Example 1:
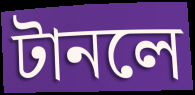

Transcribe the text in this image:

টানলে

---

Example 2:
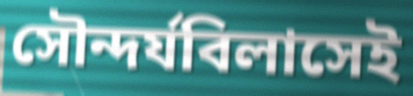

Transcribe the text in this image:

সৌন্দর্যবিলাসেই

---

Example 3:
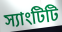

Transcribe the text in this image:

স্যাংটিটি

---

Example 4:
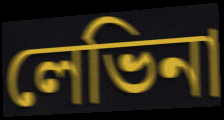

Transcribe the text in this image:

লেভিনা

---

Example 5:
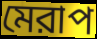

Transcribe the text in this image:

মেরাপ